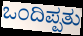
ಒಂದಿಪ್ಪತು